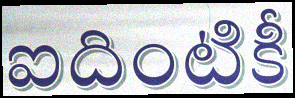
ఐదింటికీ